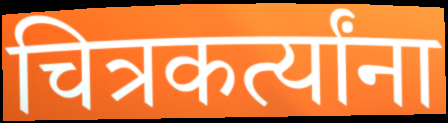
चित्रकर्त्यांना